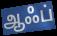
ஆஃப்